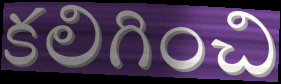
కలిగించి